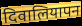
दिवालियापन